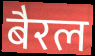
बैरल